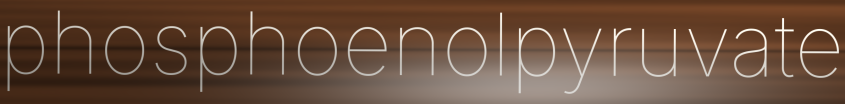
phosphoenolpyruvate